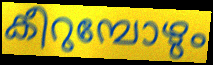
കീറുമ്പോഴും